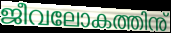
ജീവലോകത്തിനു്